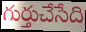
గుర్తుచేసేది